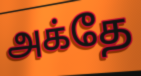
அக்தே